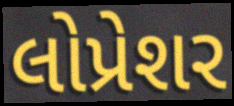
લોપ્રેશર